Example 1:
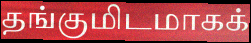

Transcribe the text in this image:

தங்குமிடமாகக்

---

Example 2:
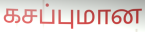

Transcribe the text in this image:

கசப்புமான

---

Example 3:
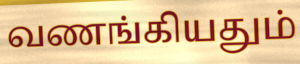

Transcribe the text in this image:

வணங்கியதும்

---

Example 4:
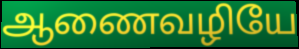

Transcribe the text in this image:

ஆணைவழியே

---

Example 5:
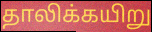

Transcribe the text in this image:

தாலிக்கயிறு